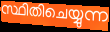
സ്ഥിതിചെയ്യുന്ന